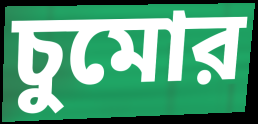
চুমোর